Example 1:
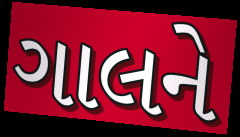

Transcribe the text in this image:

ગાલને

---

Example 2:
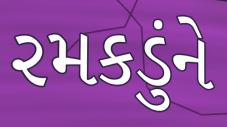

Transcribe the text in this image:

રમકડુંને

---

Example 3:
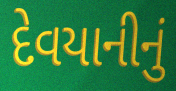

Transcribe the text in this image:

દેવયાનીનું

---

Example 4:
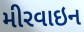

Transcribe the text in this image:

મીરવાઇન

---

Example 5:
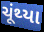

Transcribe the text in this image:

ચૂંથ્યા